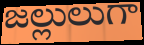
జల్లులుగా